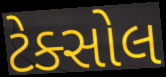
ટેક્સોલ